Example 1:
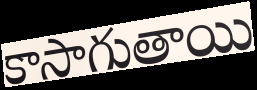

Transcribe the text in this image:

కాసాగుతాయి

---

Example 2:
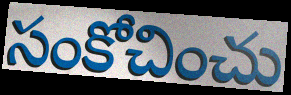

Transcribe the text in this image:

సంకోచించు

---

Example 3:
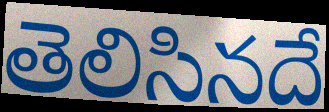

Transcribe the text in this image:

తెలిసినదే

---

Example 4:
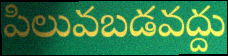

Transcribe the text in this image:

పిలువబడవద్దు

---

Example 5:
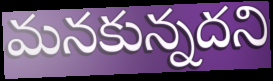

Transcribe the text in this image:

మనకున్నదని